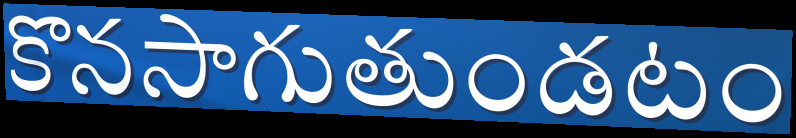
కొనసాగుతుండటం